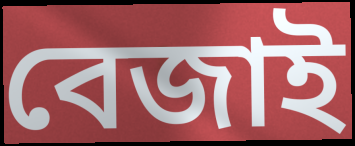
বেজাই